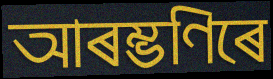
আৰম্ভণিৰে